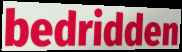
bedridden